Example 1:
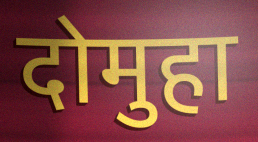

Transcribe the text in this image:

दोमुहा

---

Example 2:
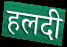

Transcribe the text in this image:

हलदी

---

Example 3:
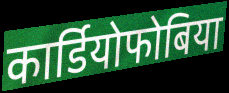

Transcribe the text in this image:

कार्डियोफोबिया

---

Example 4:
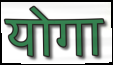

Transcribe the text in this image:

योगा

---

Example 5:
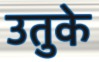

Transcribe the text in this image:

उतुके